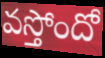
వస్తోందో